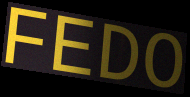
FEDO